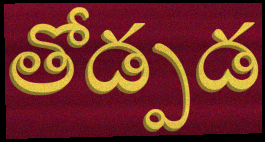
తోడ్పడ